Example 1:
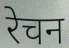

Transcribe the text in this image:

रेचन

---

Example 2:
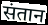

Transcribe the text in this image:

संतान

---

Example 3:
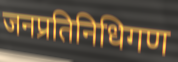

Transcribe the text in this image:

जनप्रतिनिधिगण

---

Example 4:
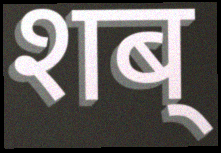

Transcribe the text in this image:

शब्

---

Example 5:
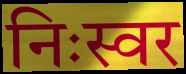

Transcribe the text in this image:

निःस्वर